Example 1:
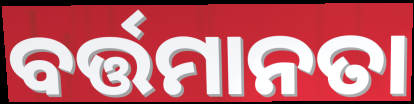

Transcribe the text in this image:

ବର୍ତ୍ତମାନତା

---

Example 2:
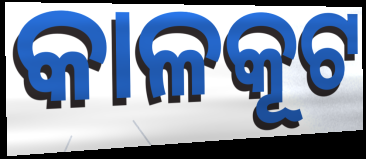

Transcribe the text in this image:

କାଳକୂଟ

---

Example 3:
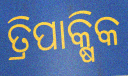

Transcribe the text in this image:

ତ୍ରିପାକ୍ଷିକ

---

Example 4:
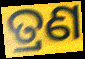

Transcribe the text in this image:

ତ୍ରଣ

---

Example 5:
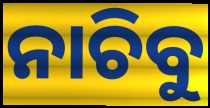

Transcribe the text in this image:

ନାଚିବୁ